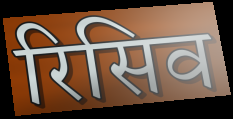
रिसिव